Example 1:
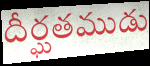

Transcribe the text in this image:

దీర్ఘతముడు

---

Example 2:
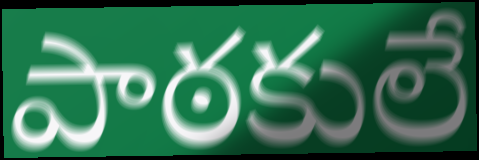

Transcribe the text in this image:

పాఠకులే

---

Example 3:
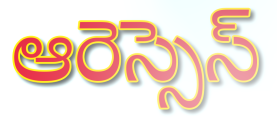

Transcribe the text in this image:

ఆరెస్సెస్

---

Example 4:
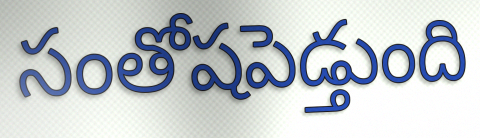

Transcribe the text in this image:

సంతోషపెడ్తుంది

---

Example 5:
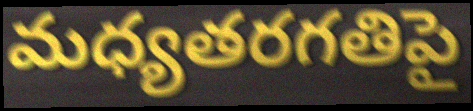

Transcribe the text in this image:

మధ్యతరగతిపై